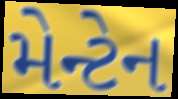
મેન્ટેન